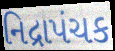
નિદ્રાપંચક